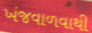
ખંજવાળવાથી